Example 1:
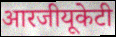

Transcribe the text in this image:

आरजीयूकेटी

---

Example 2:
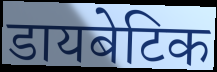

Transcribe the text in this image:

डायबेटिक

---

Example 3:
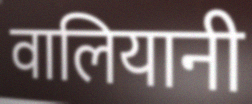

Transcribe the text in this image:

वालियानी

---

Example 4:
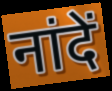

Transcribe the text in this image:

नांदें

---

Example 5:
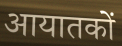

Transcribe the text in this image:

आयातकों